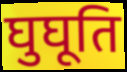
घुघूति